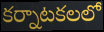
కర్నాటకలలో